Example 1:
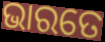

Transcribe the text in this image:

ଭାରତେ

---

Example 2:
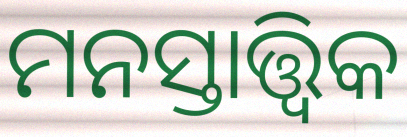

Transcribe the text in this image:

ମନସ୍ତାତ୍ତ୍ଵିକ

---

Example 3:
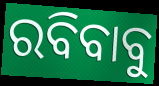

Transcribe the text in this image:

ରବିବାବୁ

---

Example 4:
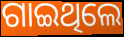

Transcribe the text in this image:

ଗାଇଥିଲେ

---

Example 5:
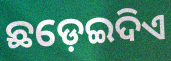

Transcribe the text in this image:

ଛଡ଼େଇଦିଏ